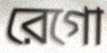
রেগো